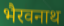
भैरवनाथ